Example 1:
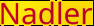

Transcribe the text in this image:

Nadler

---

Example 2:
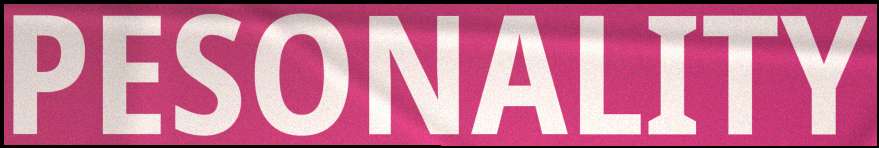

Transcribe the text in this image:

PESONALITY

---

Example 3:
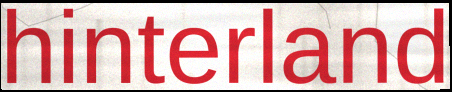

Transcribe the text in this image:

hinterland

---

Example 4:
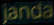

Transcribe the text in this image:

janda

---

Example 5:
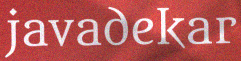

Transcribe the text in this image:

javadekar